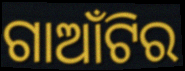
ଗାଆଁଟିର